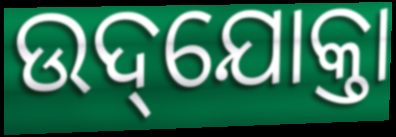
ଉଦ୍‌ଯୋକ୍ତା